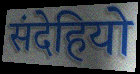
संदेहियो